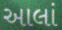
આલાં